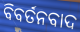
ବିବର୍ତନବାଦ